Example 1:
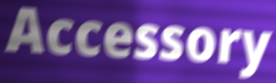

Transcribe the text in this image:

Accessory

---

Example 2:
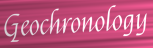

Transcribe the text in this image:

Geochronology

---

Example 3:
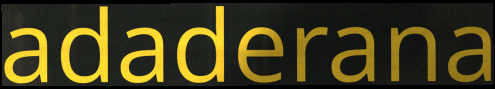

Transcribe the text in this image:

adaderana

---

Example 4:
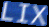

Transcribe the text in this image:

LIX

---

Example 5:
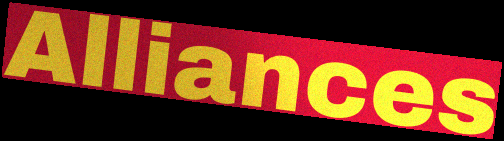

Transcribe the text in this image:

Alliances